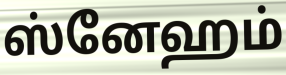
ஸ்னேஹம்